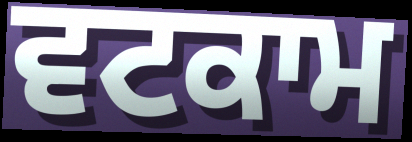
ਵਟਕਾਮ